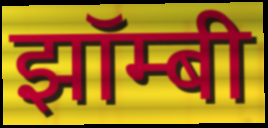
झॉम्बी